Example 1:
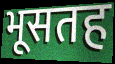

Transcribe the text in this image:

भूसतह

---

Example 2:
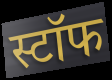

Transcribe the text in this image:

स्टॉफ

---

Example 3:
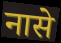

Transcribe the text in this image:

नासे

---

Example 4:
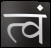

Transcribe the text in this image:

त्वं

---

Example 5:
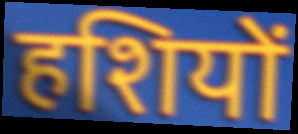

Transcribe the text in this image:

हशियों